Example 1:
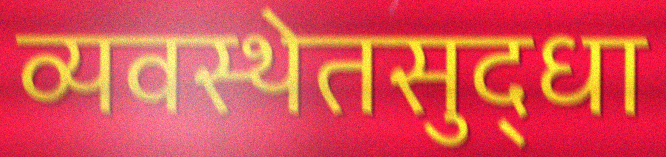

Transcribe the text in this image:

व्यवस्थेतसुद्धा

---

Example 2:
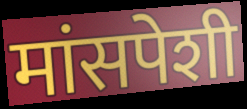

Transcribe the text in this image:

मांसपेशी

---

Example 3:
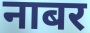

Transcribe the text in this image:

नाबर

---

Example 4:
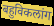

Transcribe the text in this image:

बहुविकलांग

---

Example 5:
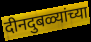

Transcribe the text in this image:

दीनदुबळ्यांच्या